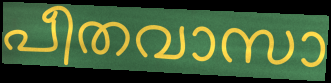
പീതവാസാ